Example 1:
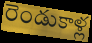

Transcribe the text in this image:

రెండుకాళ్ల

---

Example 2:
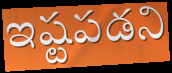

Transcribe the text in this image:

ఇష్టపడని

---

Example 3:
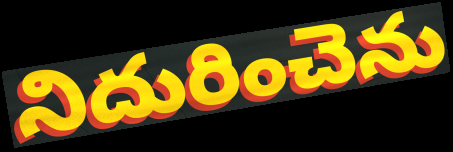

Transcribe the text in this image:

నిదురించెను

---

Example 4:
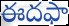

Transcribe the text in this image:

ఈదఫా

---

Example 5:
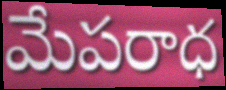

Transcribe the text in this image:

మేపరాధ